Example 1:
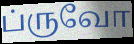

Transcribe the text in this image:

ப்ருவோ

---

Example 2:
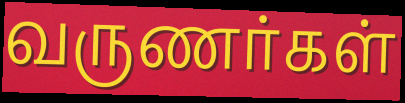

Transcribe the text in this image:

வருணர்கள்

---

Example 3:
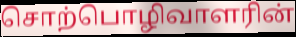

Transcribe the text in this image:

சொற்பொழிவாளரின்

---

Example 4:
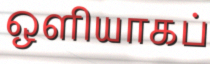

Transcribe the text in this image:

ஒளியாகப்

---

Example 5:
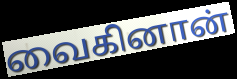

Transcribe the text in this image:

வைகினான்